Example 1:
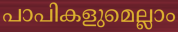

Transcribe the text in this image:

പാപികളുമെല്ലാം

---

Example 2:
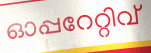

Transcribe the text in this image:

ഓപ്പറേറ്റിവ്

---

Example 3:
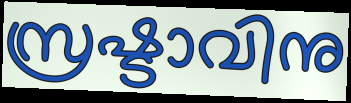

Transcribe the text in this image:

സ്രഷ്ടാവിനു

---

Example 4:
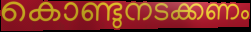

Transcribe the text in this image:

കൊണ്ടുനടക്കണം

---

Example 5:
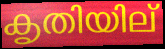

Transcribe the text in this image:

കൃതിയില്